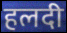
हलदी